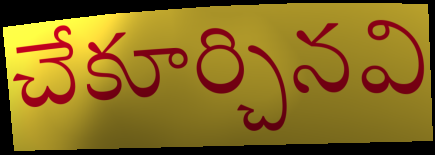
చేకూర్చినవి